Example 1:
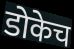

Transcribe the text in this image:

डोकेच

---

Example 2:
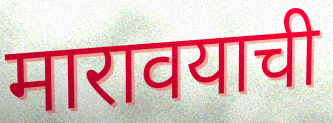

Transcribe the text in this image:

मारावयाची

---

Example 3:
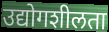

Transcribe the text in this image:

उद्योगशीलता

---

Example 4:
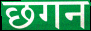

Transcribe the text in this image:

छगन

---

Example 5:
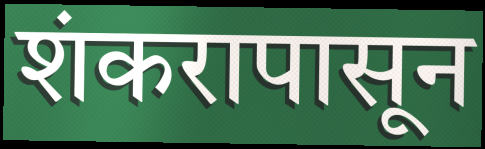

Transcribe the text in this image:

शंकरापासून